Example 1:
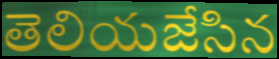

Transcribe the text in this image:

తెలియజేసిన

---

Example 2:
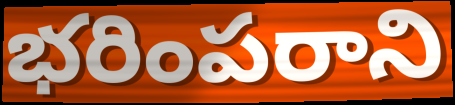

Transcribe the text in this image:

భరింపరాని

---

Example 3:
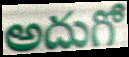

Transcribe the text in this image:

అదుగో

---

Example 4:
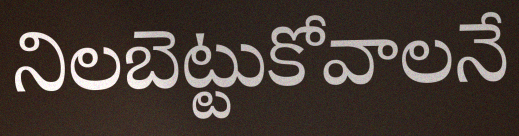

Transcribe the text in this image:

నిలబెట్టుకోవాలనే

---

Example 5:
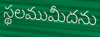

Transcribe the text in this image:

స్థలముమీదను